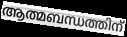
ആത്മബന്ധത്തിന്